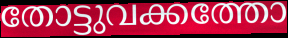
തോട്ടുവക്കത്തോ